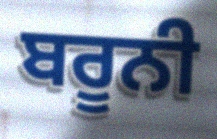
ਬਰੂਨੀ